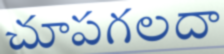
చూపగలదా